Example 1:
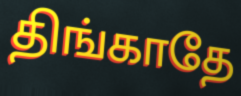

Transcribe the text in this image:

திங்காதே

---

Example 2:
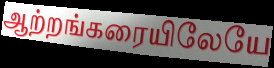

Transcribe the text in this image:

ஆற்றங்கரையிலேயே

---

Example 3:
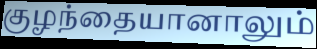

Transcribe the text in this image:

குழந்தையானாலும்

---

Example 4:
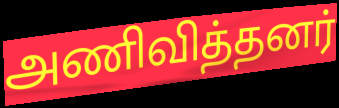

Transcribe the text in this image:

அணிவித்தனர்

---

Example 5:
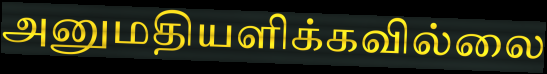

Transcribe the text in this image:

அனுமதியளிக்கவில்லை